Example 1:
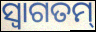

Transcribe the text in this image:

ସ୍ୱାଗତମ୍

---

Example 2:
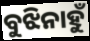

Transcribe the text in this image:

ବୁଝିନାହୁଁ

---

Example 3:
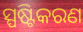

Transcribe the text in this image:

ସ୍ପଷ୍ଟିକରଣ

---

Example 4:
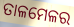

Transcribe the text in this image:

ତାଳମେଳର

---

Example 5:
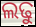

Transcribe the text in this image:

ଲଢୁ